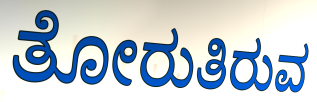
ತೋರುತಿರುವ